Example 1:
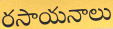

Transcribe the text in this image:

రసాయనాలు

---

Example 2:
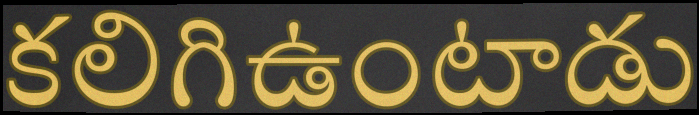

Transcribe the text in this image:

కలిగిఉంటాడు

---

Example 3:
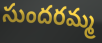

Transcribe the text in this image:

సుందరమ్మ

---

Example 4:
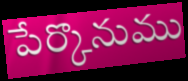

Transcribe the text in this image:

పేర్కొనుము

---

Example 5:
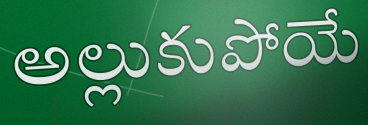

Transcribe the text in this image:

అల్లుకుపోయే